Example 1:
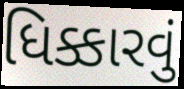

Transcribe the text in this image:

ધિક્કારવું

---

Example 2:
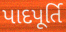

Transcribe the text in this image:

પાદપૂર્તિ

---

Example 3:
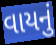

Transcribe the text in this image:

વાયનું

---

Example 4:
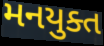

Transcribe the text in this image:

મનયુક્ત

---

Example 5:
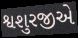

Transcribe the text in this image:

શ્વશુરજીએ